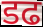
डढ